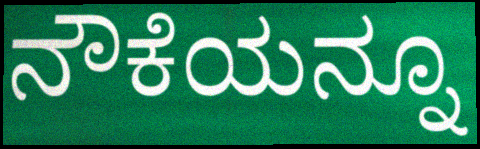
ನೌಕೆಯನ್ನೂ